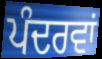
ਪੰਦਰਵਾਂ